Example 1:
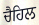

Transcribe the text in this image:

ਚੈਹਿਲ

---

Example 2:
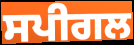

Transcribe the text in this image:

ਸਪੀਗਲ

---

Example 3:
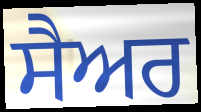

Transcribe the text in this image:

ਸੈਅਰ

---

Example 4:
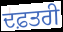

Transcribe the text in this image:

ਦਫ਼ਤਰੀ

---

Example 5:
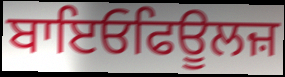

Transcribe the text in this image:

ਬਾਇਓਫਿਊਲਜ਼